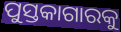
ପୁସ୍ତକାଗାରକୁ